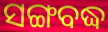
ସଙ୍ଗବଦ୍ଧ